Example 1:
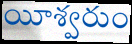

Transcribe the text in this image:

యీశ్వరుం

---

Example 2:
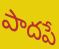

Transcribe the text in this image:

పాదపే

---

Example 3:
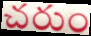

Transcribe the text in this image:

చరుం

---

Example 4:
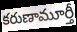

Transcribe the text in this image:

కరుణామూర్తీ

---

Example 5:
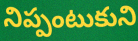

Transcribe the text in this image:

నిప్పంటుకుని